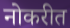
नोकरीत